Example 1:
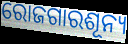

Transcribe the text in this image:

ରୋଜଗାରଶୂନ୍ୟ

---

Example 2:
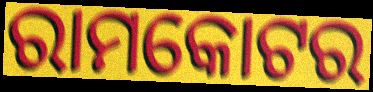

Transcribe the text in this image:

ରାମକୋଟର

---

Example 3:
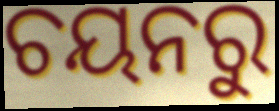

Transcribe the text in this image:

ଚୟନରୁ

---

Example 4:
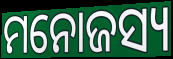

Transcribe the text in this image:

ମନୋଜସ୍ୟ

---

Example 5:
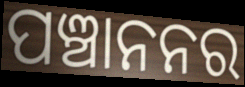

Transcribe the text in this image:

ପଞ୍ଚାନନର